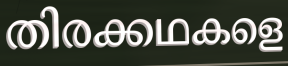
തിരക്കഥകളെ